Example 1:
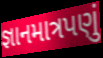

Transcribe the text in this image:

જ્ઞાનમાત્રપણું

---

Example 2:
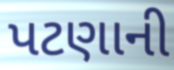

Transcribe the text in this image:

પટણાની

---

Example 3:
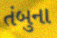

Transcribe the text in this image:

તંબુના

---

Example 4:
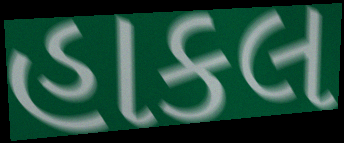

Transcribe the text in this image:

હાકલ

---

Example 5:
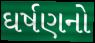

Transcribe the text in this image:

ઘર્ષણનો